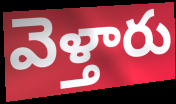
వెళ్తారు